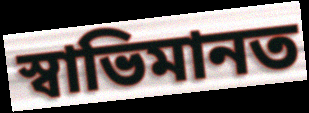
স্বাভিমানত